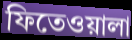
ফিতেওয়ালা